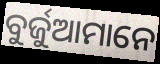
ବୁର୍ଜୁଆମାନେ